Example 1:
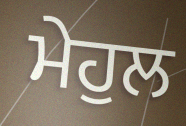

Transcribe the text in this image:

ਮੇਹੁਲ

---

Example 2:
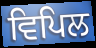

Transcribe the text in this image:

ਵਿਪਿਲ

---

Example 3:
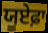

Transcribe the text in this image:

ਯੂਏਫ਼ਾ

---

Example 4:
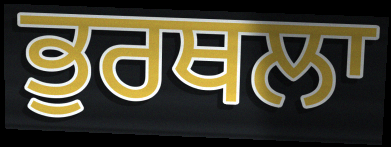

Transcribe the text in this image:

ਭੁਰਥਲਾ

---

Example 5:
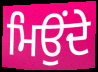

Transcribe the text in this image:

ਮਿਉਂਦੇ